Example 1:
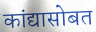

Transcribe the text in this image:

कांद्यासोबत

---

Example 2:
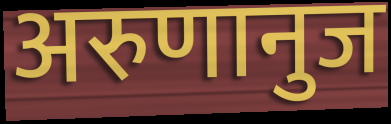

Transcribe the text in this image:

अरुणानुज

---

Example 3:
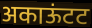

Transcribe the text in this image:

अकाऊंटट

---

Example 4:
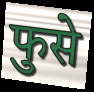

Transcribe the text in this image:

फुसे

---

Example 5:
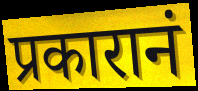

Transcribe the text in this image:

प्रकारानं